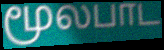
மூலபாட